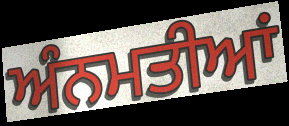
ਅੰਨਮਤੀਆਂ